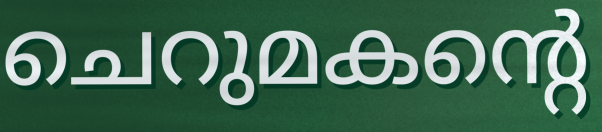
ചെറുമകന്റെ